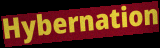
Hybernation